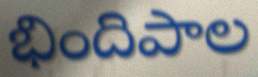
భిందిపాల